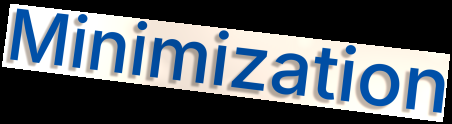
Minimization